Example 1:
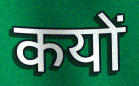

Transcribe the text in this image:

कयों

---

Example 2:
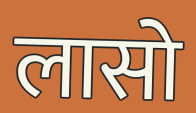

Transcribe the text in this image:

लासो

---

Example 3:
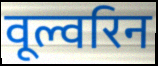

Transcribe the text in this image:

वूल्वरिन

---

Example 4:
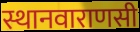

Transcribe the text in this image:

स्थानवाराणसी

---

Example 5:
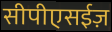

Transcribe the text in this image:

सीपीएसईज़